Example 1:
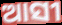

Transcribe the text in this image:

ଆସୀ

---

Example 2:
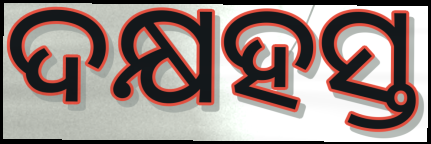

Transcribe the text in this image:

ଦକ୍ଷହସ୍ତ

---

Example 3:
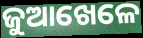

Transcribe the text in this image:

ଜୁଆଖେଳେ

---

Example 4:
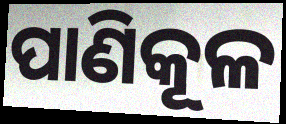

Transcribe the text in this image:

ପାଣିକୂଳ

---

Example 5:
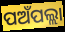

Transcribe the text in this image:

ପଅଁପଲ୍ଲା